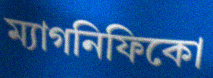
ম্যাগনিফিকো